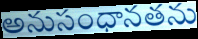
అనుసంధానతను